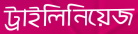
ট্রাইলিনিয়েজ